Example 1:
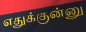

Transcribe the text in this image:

எதுக்குன்னு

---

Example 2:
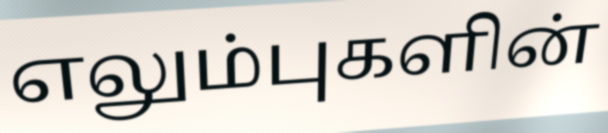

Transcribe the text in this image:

எலும்புகளின்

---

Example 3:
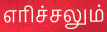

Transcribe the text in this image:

எரிச்சலும்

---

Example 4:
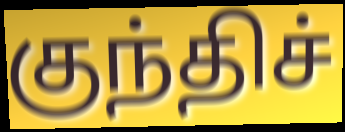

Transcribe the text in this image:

குந்திச்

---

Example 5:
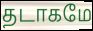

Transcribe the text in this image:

தடாகமே